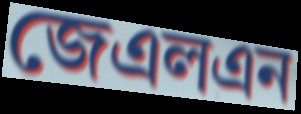
জেএলএন